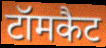
टॉमकैट